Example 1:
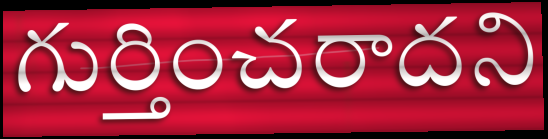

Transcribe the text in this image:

గుర్తించరాదని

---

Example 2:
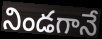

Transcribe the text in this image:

నిండగానే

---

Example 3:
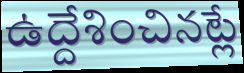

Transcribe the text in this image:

ఉద్దేశించినట్లే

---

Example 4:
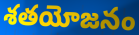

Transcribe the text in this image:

శతయోజనం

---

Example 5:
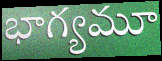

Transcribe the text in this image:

భాగ్యమూ